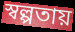
স্বল্পতায়